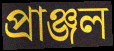
প্ৰাঞ্জল